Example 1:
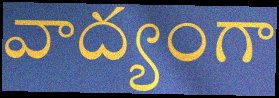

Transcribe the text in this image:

వాద్యంగా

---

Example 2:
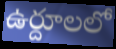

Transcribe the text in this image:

ఉర్దూలలో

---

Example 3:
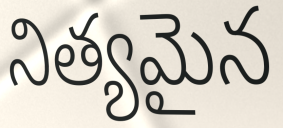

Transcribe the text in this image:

నిత్యమైన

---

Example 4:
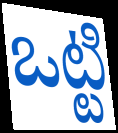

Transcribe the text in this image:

ఒట్టి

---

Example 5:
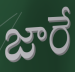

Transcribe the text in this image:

జారే